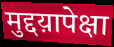
मुद्दय़ापेक्षा